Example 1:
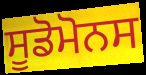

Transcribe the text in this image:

ਸੂਡੋਮੋਨਸ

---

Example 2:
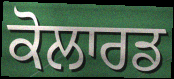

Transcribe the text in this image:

ਕੋਲਾਰਡ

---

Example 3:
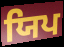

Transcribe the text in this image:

ਯਿਪ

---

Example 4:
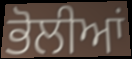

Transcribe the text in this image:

ਭੋਲੀਆਂ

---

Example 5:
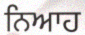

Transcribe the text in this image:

ਨਿਆਹ